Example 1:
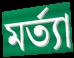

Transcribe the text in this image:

মর্ত্যা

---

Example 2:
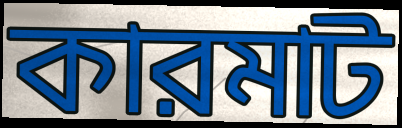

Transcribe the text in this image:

কারমাট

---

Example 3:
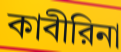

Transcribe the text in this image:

কাবীরিনা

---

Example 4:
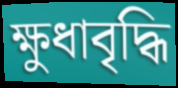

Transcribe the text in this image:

ক্ষুধাবৃদ্ধি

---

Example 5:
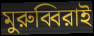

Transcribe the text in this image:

মুরুব্বিরাই